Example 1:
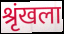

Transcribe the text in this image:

श्रृंखला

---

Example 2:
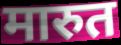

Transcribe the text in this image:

मारुत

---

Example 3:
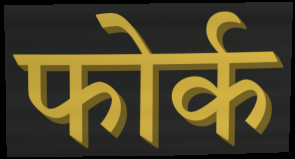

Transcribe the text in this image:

फोर्क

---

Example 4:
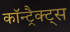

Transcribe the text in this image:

कॉन्‍ट्रैक्‍ट्स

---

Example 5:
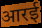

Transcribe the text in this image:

आरई